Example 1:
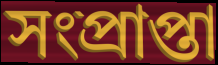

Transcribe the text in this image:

সংপ্রাপ্তা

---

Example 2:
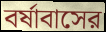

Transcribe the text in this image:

বর্ষাবাসের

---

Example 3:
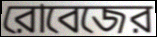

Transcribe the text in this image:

রোবেজের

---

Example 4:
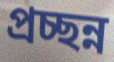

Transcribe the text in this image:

প্রচ্ছন্ন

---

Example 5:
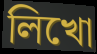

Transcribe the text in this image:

লিখো